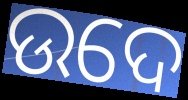
ଉଦେ